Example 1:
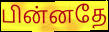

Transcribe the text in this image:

பின்னதே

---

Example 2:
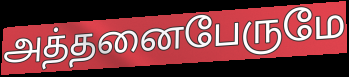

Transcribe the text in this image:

அத்தனைபேருமே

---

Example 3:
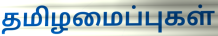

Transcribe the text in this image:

தமிழமைப்புகள்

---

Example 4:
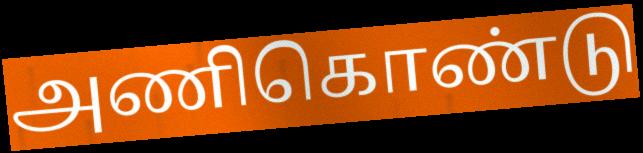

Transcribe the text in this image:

அணிகொண்டு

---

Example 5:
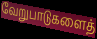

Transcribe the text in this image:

வேறுபாடுகளைத்